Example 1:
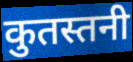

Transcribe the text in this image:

कुतस्तनी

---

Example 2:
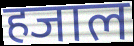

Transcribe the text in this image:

हजाल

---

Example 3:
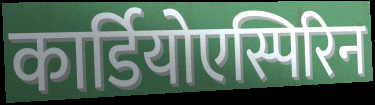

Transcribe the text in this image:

कार्डियोएस्पिरिन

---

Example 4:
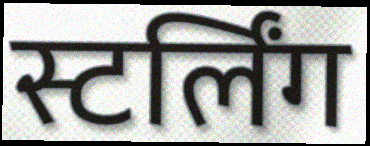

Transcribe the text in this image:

स्‍टर्लिंग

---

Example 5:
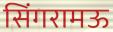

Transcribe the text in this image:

सिंगरामऊ